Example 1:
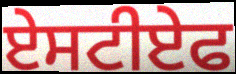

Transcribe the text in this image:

ਏਸਟੀਏਫ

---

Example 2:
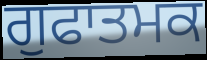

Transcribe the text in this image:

ਗੁਫਾਤਮਕ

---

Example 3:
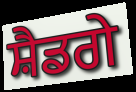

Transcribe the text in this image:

ਸ਼ੈਡਗੇ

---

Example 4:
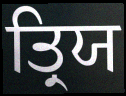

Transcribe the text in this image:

ਤ੍ਰਿਯ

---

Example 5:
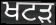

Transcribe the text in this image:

ਖਟੜ